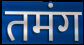
तमंग